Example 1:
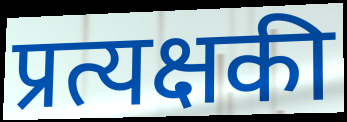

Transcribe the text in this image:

प्रत्यक्षकी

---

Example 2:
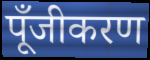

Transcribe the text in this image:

पूँजीकरण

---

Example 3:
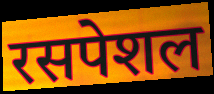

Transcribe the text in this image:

रसपेशल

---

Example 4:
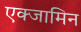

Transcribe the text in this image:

एक्जामिन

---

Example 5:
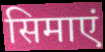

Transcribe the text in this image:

सिमाएं